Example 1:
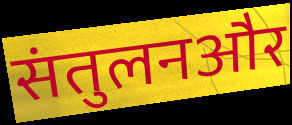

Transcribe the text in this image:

संतुलनऔर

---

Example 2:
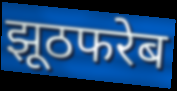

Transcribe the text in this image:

झूठफरेब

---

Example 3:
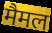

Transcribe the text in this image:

मैमल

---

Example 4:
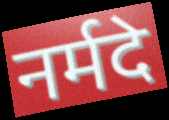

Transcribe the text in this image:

नर्मदे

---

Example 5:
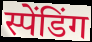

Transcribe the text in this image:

स्पेंडिंग